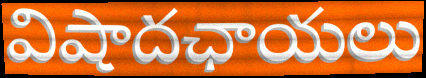
విషాదఛాయలు